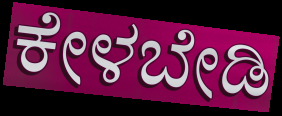
ಕೇಳಬೇಡಿ